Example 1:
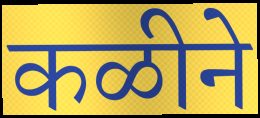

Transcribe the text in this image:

कळीने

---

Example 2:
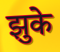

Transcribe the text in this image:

झुके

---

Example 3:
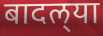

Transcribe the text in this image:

बादल्या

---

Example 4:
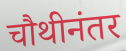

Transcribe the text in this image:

चौथीनंतर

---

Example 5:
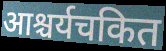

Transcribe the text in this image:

आश्चर्यचकित